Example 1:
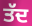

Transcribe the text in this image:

ਤੱਦ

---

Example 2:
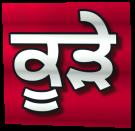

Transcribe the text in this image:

ਕੂਡ਼ੇ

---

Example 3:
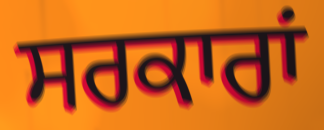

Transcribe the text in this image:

ਸਰਕਾਰਾਂ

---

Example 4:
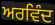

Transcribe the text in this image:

ਅਰਵਿੰਦ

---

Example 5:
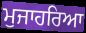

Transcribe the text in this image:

ਮੁਜਾਹਰਿਆ